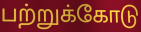
பற்றுக்கோடு